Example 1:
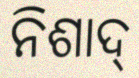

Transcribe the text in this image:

ନିଶାଦ୍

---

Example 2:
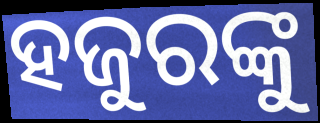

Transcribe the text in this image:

ହଜୁରଙ୍କୁ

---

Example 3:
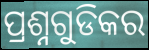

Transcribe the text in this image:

ପ୍ରଶ୍ନଗୁଡିକର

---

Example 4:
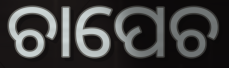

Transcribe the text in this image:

ଚାପେଚ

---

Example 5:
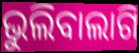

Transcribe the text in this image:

ଭୁଲିବାଲାଗି